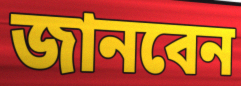
জানবেন